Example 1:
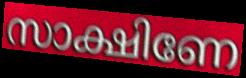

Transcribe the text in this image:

സാക്ഷിണേ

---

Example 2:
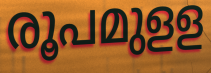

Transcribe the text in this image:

രൂപമുളള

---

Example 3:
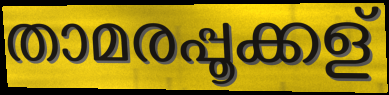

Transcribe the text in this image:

താമരപ്പൂക്കള്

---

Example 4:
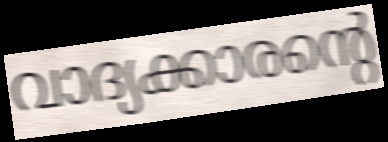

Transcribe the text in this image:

വാദ്യക്കാരന്റെ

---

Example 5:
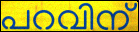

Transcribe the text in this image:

പറവിന്